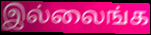
இல்லைங்க